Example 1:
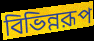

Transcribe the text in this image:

বিভিন্নরূপ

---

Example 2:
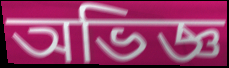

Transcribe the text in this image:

অভিজ্ঞ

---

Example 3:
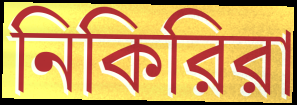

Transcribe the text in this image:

নিকিরিরা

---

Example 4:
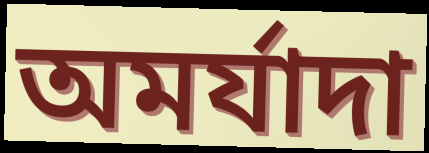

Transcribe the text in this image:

অমর্যাদা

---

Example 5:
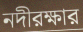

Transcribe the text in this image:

নদীরক্ষার